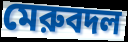
মেরুবদল